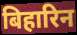
बिहारिन